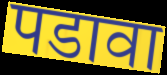
पडावा